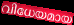
വിധേയമായ